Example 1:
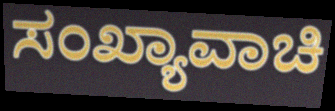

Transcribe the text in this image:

ಸಂಖ್ಯಾವಾಚಿ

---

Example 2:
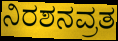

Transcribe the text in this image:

ನಿರಶನವ್ರತ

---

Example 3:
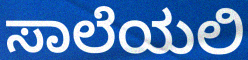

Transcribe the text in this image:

ಸಾಲೆಯಲಿ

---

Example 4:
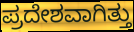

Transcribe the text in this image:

ಪ್ರದೇಶವಾಗಿತ್ತು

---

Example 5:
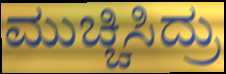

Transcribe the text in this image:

ಮುಚ್ಚಿಸಿದ್ರು